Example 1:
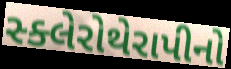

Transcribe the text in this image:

સ્ક્લેરોથેરાપીનો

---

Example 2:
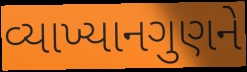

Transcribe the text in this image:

વ્યાખ્યાનગુણને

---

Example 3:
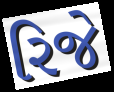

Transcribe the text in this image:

રિજે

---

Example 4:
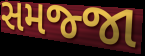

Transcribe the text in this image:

સમજ્જા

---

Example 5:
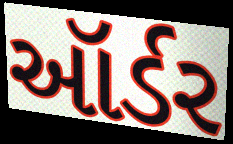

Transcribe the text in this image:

ઑર્ડર